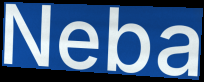
Neba